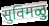
सुविमळु